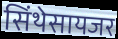
सिंथेसायजर